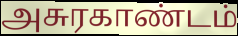
அசுரகாண்டம்